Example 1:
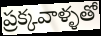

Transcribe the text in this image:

ప్రక్కవాళ్ళతో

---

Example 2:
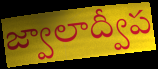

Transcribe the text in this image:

జ్వాలాద్వీప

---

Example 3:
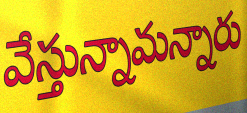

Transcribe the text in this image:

వేస్తున్నామన్నారు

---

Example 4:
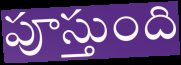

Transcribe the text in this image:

పూస్తుంది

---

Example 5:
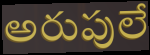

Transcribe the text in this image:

అరుపులే